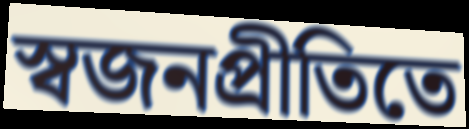
স্বজনপ্রীতিতে